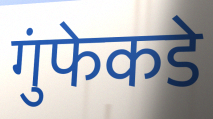
गुंफेकडे